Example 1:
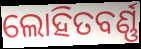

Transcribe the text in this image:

ଲୋହିତବର୍ଣ୍ଣ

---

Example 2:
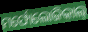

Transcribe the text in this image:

ମର୍ଫୋଲୋଜିକାଲ୍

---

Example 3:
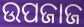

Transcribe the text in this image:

ଉପଜାଜ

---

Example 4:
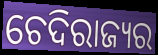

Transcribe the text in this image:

ଚେଦିରାଜ୍ୟର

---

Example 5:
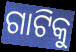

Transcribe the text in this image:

ଗାଟିକୁ